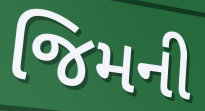
જિમની